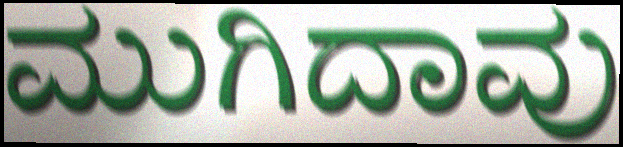
ಮುಗಿದಾವು